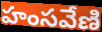
హంసవేణి